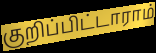
குறிப்பிட்டாராம்